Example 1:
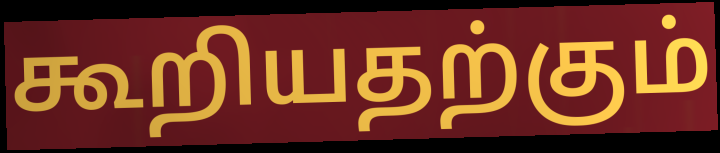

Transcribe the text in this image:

கூறியதற்கும்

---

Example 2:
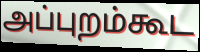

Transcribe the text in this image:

அப்புறம்கூட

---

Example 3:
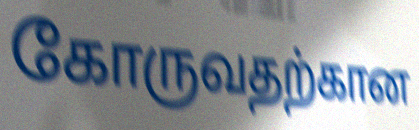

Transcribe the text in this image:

கோருவதற்கான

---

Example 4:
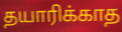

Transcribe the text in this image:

தயாரிக்காத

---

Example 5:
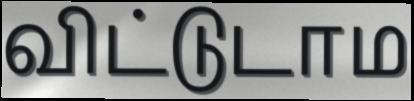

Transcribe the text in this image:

விட்டுடாம